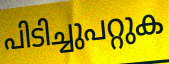
പിടിച്ചുപറ്റുക